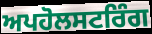
ਅਪਹੋਲਸਟਰਿੰਗ